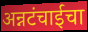
अन्नटंचाईचा